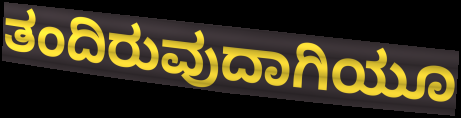
ತಂದಿರುವುದಾಗಿಯೂ